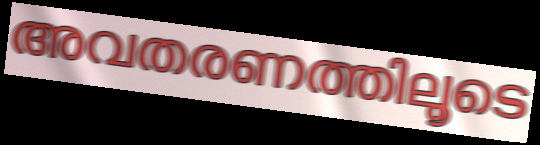
അവതരണത്തിലൂടെ